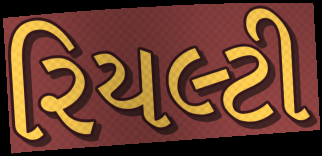
રિયલ્ટી